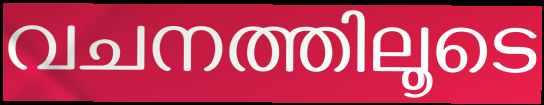
വചനത്തിലൂടെ